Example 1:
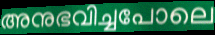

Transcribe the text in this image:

അനുഭവിച്ചപോലെ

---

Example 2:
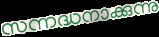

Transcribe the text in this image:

സന്നദ്ധനാക്കുന്നു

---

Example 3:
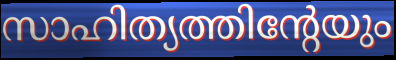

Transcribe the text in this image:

സാഹിത്യത്തിന്റേയും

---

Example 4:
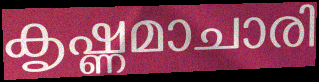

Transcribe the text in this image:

കൃഷ്ണമാചാരി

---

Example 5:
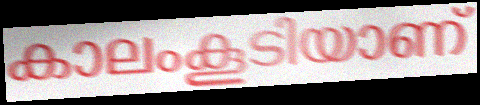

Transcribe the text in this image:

കാലംകൂടിയാണ്